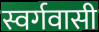
स्वर्गवासी